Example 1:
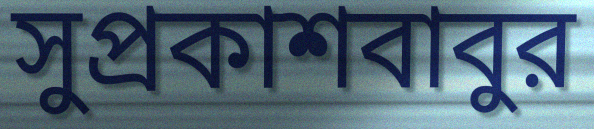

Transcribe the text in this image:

সুপ্রকাশবাবুর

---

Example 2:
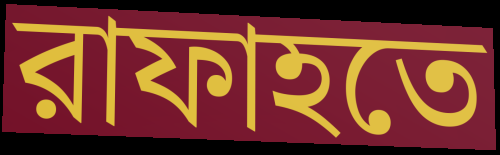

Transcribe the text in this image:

রাফাহতে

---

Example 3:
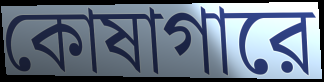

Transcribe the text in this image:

কোষাগারে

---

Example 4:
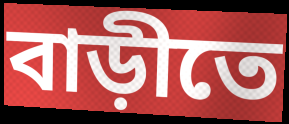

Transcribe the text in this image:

বাড়ীতে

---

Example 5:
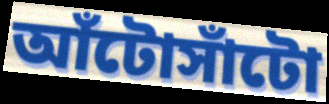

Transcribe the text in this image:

আঁটোসাঁটো